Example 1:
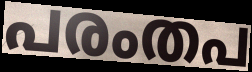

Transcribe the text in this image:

പരംതപ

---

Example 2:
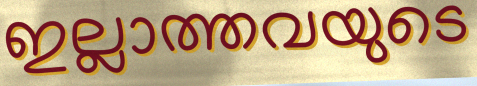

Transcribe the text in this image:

ഇല്ലാത്തവയുടെ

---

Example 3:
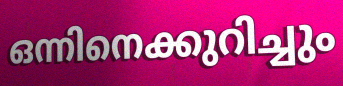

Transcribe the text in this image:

ഒന്നിനെക്കുറിച്ചും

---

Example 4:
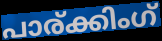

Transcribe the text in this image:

പാര്ക്കിംഗ്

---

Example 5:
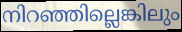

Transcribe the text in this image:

നിറഞ്ഞില്ലെങ്കിലും